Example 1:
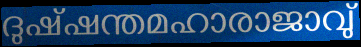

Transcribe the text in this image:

ദുഷ്ഷന്തമഹാരാജാവു്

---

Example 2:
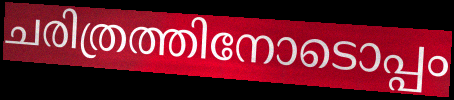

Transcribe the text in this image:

ചരിത്രത്തിനോടൊപ്പം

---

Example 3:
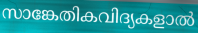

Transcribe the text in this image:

സാങ്കേതികവിദ്യകളാൽ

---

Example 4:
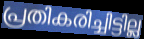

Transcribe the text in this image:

പ്രതികരിച്ചിട്ടില്ല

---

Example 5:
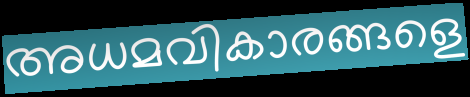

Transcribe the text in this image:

അധമവികാരങ്ങളെ